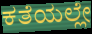
ಕತೆಯಲ್ಲೇ